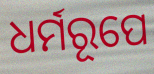
ଧର୍ମରୂପେ